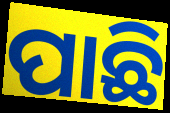
ପାଛି